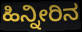
ಹಿನ್ನೀರಿನ